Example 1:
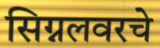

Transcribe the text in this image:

सिग्नलवरचे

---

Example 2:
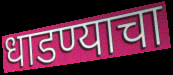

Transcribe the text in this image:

धाडण्याचा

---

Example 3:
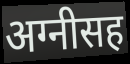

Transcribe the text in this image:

अग्नीसह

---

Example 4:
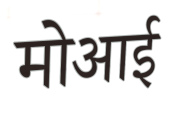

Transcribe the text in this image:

मोआई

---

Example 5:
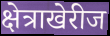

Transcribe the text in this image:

क्षेत्राखेरीज